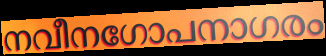
നവീനഗോപനാഗരം